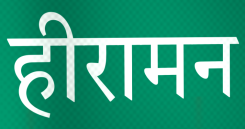
हीरामन